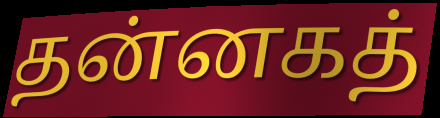
தன்னகத்